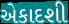
એકાદશી